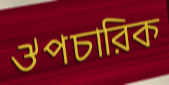
ঔপচারিক